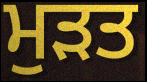
ਮੁੜਤ